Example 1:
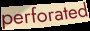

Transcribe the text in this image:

perforated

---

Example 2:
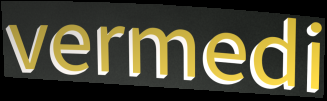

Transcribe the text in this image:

vermedi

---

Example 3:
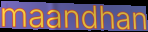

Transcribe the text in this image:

maandhan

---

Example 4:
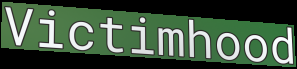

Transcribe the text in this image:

Victimhood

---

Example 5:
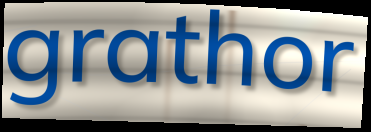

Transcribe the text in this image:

grathor